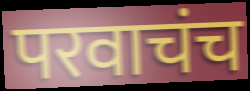
परवाचंच